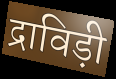
द्राविड़ी